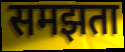
समझता